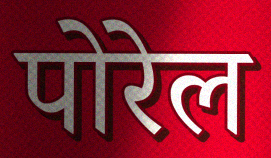
पोरेल